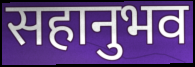
सहानुभव